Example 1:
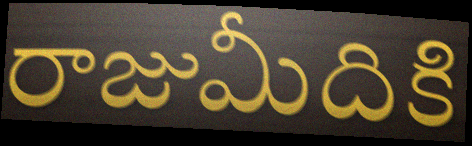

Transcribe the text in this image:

రాజుమీదికి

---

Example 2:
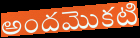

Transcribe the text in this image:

అందమొకటి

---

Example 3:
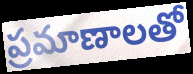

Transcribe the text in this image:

ప్రమాణాలతో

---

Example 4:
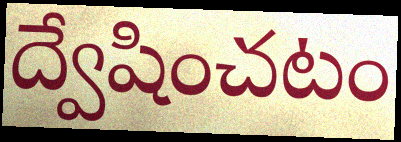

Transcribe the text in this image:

ద్వేషించటం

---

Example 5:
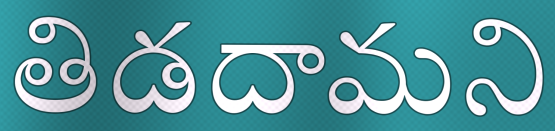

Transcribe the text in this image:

తిడదామని